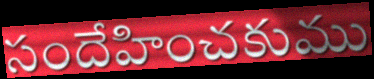
సందేహించకుము